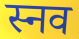
स्नव